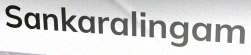
Sankaralingam